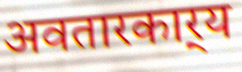
अवतारकार्य